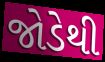
જોડેથી